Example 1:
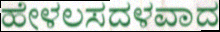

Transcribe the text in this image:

ಹೇಳಲಸದಳವಾದ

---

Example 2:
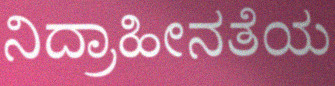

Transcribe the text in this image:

ನಿದ್ರಾಹೀನತೆಯ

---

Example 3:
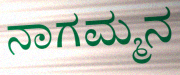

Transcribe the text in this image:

ನಾಗಮ್ಮನ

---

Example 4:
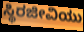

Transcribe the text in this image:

ಸ್ಥಿರಜೀವಿಯು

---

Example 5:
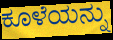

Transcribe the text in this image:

ಕೂಳೆಯನ್ನು